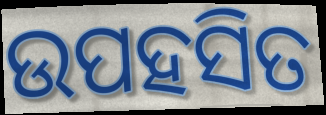
ଉପହସିତ